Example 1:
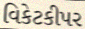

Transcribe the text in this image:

વિકેટકીપર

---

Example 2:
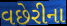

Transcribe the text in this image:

વછેરીના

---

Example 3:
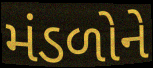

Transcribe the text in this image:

મંડળોને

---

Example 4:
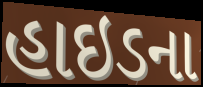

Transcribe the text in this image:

હાઇડના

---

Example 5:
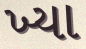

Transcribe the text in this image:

ખ્યા